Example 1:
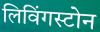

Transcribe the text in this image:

लिविंगस्टोन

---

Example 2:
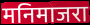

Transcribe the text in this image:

मनिमाजरा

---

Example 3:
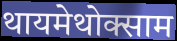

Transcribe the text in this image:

थायमेथोक्साम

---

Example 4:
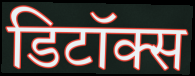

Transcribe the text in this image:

डिटॉक्स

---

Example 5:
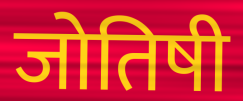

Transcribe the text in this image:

जोतिषी